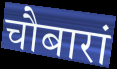
चौबारां